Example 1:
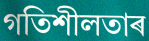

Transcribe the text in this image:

গতিশীলতাৰ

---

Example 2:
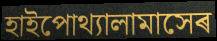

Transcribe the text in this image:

হাইপোথ্যালামাসেৰ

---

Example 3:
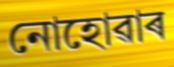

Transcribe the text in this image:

নোহোৱাৰ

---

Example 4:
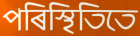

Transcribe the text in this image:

পৰিস্থিতিতে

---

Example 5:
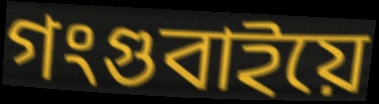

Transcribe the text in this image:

গংগুবাইয়ে